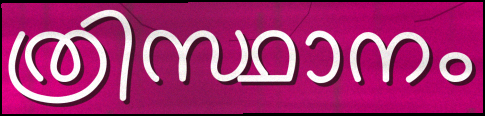
ത്രിസ്ഥാനം